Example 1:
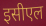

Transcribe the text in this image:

इसीएल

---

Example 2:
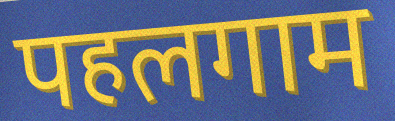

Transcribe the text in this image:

पहलगाम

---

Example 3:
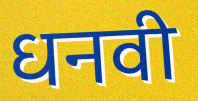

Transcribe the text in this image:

धनवी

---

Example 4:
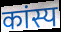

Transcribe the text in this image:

कांस्य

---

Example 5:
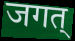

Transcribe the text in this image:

जगत्